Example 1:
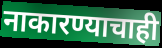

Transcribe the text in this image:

नाकारण्याचाही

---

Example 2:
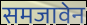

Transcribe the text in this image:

समजावेन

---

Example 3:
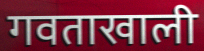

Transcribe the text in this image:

गवताखाली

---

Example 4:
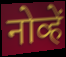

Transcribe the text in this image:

नोव्हें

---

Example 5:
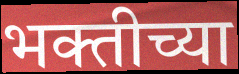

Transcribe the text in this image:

भक्तीच्या